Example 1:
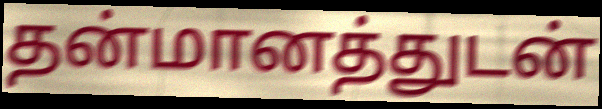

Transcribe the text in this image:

தன்மானத்துடன்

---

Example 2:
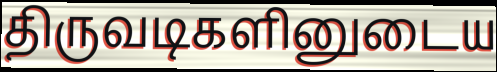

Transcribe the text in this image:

திருவடிகளினுடைய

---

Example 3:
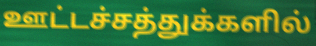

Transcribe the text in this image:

ஊட்டச்சத்துக்களில்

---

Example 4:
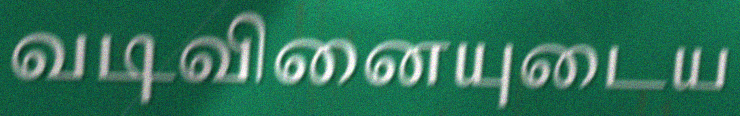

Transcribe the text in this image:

வடிவினையுடைய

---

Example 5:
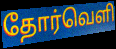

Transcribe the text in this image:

தோர்வெளி